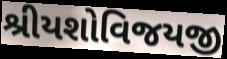
શ્રીયશોવિજયજી